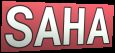
SAHA